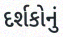
દર્શકોનું